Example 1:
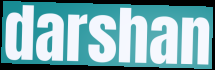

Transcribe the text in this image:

darshan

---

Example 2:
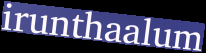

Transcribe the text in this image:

irunthaalum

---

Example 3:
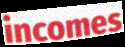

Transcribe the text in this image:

incomes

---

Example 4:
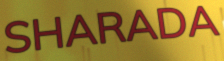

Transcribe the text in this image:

SHARADA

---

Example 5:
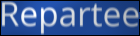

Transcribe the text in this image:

Repartee